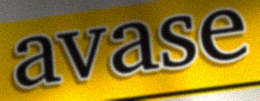
avase